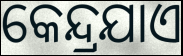
କେନ୍ଦ୍ରଯାଏ